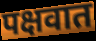
पक्षवात